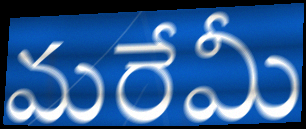
మరేమీ